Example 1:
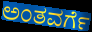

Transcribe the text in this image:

ಅಂತವರ್ಗೆ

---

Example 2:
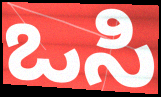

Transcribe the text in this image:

ಒಸಿ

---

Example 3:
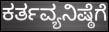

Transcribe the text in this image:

ಕರ್ತವ್ಯನಿಷ್ಠೆಗೆ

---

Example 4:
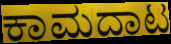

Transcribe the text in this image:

ಕಾಮದಾಟ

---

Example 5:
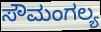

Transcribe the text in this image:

ಸೌಮಂಗಲ್ಯ